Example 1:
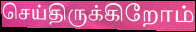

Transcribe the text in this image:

செய்திருக்கிறோம்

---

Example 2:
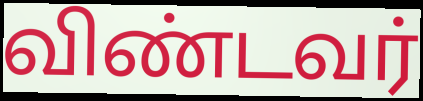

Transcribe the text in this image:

விண்டவர்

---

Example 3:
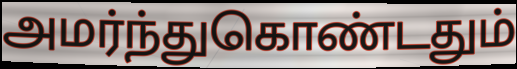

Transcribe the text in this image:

அமர்ந்துகொண்டதும்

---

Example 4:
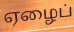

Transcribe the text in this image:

ஏழைப்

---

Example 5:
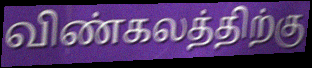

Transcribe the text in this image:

விண்கலத்திற்கு